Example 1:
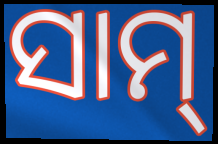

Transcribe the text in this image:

ସାମ୍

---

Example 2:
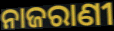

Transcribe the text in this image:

ନାଜରାଣୀ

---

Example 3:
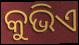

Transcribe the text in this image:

କୁଭିଏ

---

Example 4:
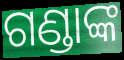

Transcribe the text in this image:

ଗଣ୍ଡାଙ୍କ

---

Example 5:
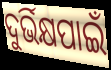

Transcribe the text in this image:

ଦୁର୍ଭିକ୍ଷପାଇଁ